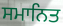
ਸਮਾਨਿਤ